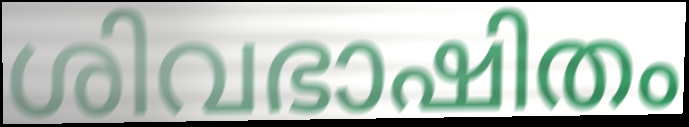
ശിവഭാഷിതം